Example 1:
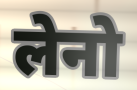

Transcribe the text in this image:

लेनो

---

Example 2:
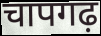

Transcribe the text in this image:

चापगढ़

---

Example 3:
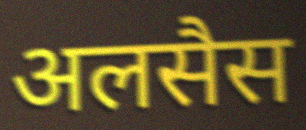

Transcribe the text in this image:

अलसैस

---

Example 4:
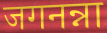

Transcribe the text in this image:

जगनन्ना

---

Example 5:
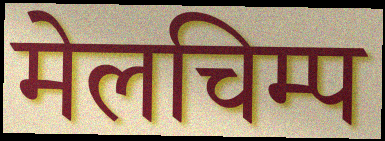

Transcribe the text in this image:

मेलचिम्प